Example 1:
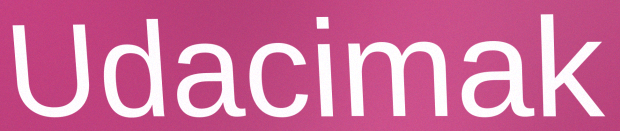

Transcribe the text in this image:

Udacimak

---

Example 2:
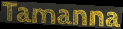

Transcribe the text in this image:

Tamanna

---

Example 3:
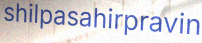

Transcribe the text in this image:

shilpasahirpravin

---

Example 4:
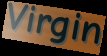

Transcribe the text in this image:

Virgin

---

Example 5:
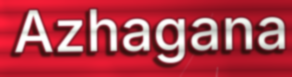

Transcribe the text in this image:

Azhagana